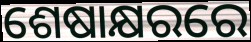
ଶେଷାକ୍ଷରରେ